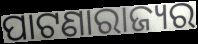
ପାଟଣାରାଜ୍ୟର